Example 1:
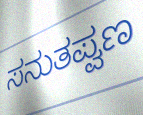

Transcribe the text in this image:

ಸನುತಪ್ವಣ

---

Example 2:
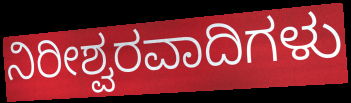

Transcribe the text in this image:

ನಿರೀಶ್ವರವಾದಿಗಳು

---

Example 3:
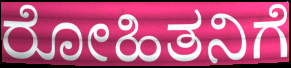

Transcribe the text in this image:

ರೋಹಿತನಿಗೆ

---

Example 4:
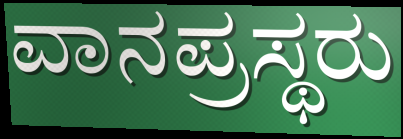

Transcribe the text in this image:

ವಾನಪ್ರಸ್ಥರು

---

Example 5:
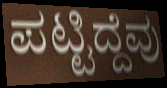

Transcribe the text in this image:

ಪಟ್ಟಿದ್ದೆವು